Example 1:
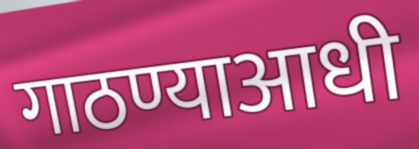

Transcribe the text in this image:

गाठण्याआधी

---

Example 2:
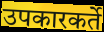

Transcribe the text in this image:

उपकारकर्ते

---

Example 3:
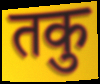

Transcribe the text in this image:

तकु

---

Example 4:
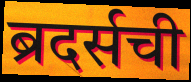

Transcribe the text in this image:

ब्रदर्सची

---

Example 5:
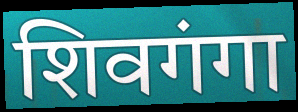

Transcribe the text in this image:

शिवगंगा